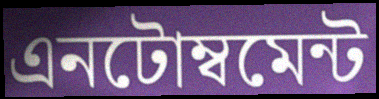
এনটোম্বমেন্ট